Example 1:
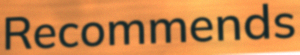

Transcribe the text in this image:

Recommends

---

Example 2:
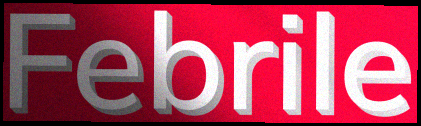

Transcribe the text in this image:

Febrile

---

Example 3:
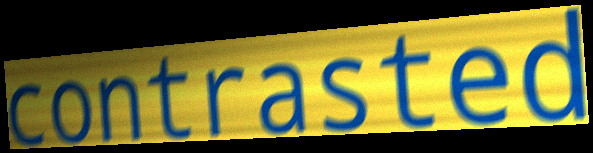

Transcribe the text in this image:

contrasted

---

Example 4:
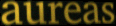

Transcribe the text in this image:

aureas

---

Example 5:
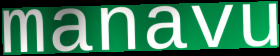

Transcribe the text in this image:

manavu